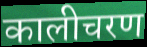
कालीचरण